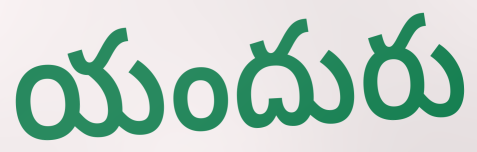
యందురు